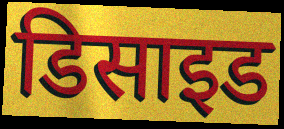
डिसाइड